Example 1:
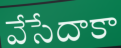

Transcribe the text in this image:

వేసేదాకా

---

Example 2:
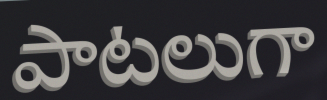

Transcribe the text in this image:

పాటలుగా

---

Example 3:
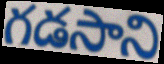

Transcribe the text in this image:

గడసాని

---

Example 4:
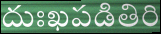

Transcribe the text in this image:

దుఃఖపడితిరి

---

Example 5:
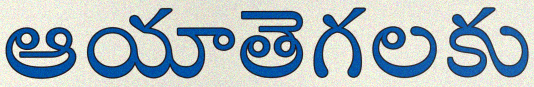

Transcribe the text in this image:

ఆయాతెగలకు